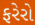
ફરેરો